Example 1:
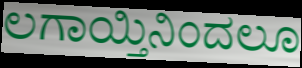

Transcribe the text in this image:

ಲಗಾಯ್ತಿನಿಂದಲೂ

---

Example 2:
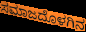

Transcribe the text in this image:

ಸಮಾಜದೊಳಗಿನ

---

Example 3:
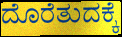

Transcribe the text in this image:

ದೊರೆತುದಕ್ಕೆ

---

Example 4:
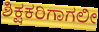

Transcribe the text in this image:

ಶಿಕ್ಷಕರಿಗಾಗಲೀ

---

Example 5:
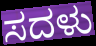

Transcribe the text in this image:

ಸದಳು